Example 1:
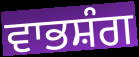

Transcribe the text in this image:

ਵਾਭਸ਼ੰਗ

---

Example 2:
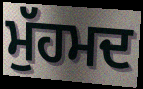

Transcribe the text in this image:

ਮੁੱਹਮਦ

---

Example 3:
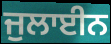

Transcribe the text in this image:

ਜੁਲਾਈਨ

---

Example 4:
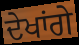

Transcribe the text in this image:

ਦੇਖਾਂਗੇ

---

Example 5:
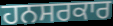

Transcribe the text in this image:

ਹਨਸਰਕਾਰ